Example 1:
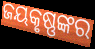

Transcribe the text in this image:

ଜୟକୃଷ୍ଣଙ୍କର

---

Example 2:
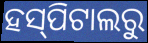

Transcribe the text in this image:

ହସ୍‍ପିଟାଲରୁ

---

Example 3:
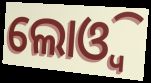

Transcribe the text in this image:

ଲୋଓ୍ବି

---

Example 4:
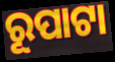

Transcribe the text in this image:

ରୂପାଟା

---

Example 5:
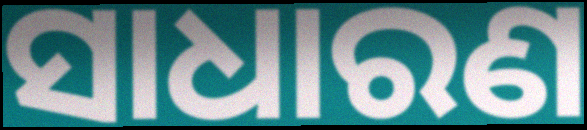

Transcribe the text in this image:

ସାଧାରଣ